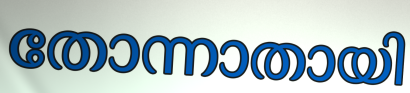
തോന്നാതായി